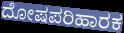
ದೋಷಪರಿಹಾರಕ